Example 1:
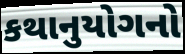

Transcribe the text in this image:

કથાનુયોગનો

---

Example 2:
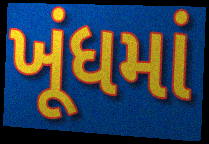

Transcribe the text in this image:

ખૂંધમાં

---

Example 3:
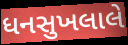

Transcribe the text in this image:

ધનસુખલાલે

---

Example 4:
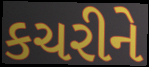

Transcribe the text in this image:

કચરીને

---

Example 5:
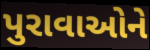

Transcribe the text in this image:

પુરાવાઓને